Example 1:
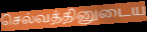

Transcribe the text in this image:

செல்வத்தினுடைய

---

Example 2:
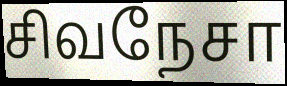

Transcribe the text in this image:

சிவநேசா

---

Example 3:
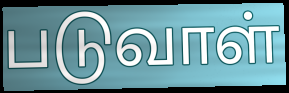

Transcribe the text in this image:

படுவாள்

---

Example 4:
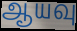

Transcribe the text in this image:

ஆயவு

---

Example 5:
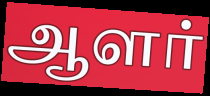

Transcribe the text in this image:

ஆளர்